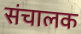
संचालक